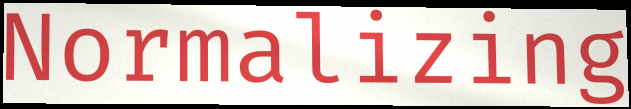
Normalizing